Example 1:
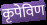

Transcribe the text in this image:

कृपेविण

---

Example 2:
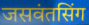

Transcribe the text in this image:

जसवंतसिंग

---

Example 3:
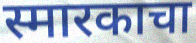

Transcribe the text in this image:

स्मारकाचा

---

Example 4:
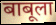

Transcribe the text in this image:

बाबूला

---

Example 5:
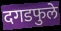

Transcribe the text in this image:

दगडफुले